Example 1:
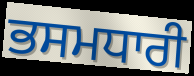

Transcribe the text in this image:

ਭਸਮਧਾਰੀ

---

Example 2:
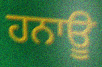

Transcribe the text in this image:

ਹਨਾਊ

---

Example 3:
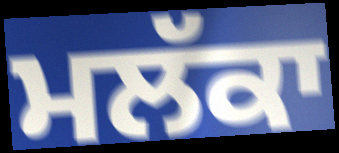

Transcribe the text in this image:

ਮਲੱਕਾ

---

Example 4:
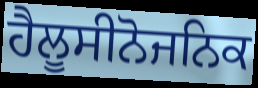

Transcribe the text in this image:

ਹੈਲੂਸੀਨੋਜਨਿਕ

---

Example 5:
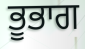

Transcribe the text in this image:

ਭੂਭਾਗ